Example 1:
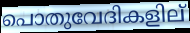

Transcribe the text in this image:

പൊതുവേദികളില്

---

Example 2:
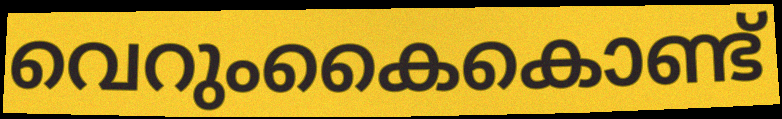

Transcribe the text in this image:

വെറുംകൈകൊണ്ട്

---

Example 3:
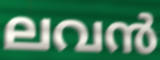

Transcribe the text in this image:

ലവൻ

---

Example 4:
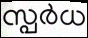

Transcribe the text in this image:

സ്പർധ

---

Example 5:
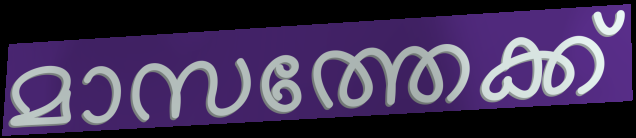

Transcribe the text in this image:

മാസത്തേക്ക്